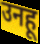
उनहू